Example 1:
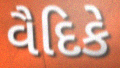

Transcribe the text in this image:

વૈદિકે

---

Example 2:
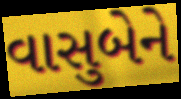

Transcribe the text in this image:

વાસુબેને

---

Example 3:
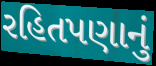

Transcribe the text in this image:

રહિતપણાનું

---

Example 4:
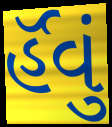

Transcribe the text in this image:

ર્હૅવું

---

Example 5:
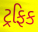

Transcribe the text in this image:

ટ્રફિક